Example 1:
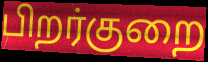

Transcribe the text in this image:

பிறர்குறை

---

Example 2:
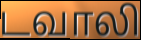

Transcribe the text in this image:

டவாலி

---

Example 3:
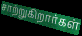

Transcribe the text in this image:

சாற்றுகிறார்கள்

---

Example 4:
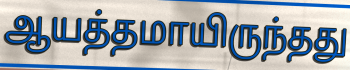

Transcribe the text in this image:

ஆயத்தமாயிருந்தது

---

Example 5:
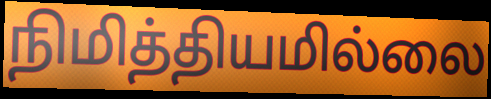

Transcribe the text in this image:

நிமித்தியமில்லை